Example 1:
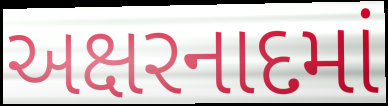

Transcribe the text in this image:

અક્ષરનાદમાં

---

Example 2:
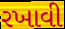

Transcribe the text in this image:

રખાવી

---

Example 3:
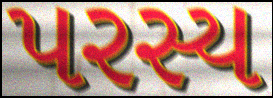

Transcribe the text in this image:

પરસ્ય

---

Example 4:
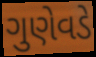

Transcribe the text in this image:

ગુણેવડે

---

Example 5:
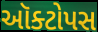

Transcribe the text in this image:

ઑક્ટોપસ